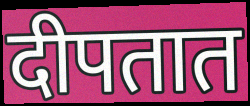
दीपतात